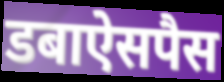
डबाऐसपैस